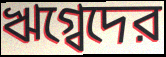
ঋগ্বেদের